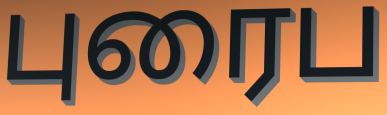
புரைப